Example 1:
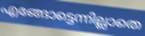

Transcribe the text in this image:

എങ്ങോട്ടെന്നില്ലാതെ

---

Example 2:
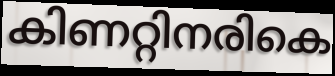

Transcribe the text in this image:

കിണറ്റിനരികെ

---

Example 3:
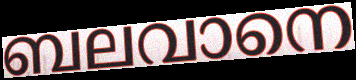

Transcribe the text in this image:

ബലവാനെ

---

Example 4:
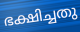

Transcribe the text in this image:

ഭക്ഷിച്ചതു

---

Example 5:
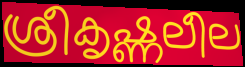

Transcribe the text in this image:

ശ്രീകൃഷ്ണലീല